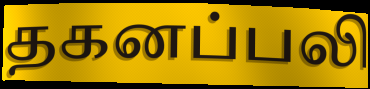
தகனப்பலி